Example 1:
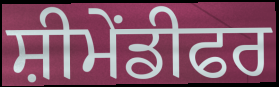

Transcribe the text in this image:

ਸ਼ੀਮੇਂਡੀਫਰ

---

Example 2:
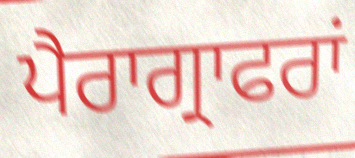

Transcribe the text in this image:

ਪੈਰਾਗ੍ਰਾਫਰਾਂ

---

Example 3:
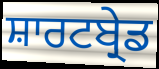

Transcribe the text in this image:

ਸ਼ਾਰਟਬ੍ਰੇਡ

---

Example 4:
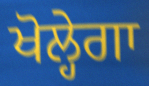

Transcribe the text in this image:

ਖੋਲ੍ਹੇਗਾ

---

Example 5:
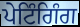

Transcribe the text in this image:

ਪੇਟਿੰਗਿੰਗ